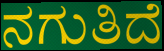
ನಗುತಿದೆ